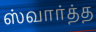
ஸ்வார்த்த